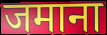
जमाना